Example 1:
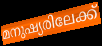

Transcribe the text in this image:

മനുഷ്യരിലേക്ക്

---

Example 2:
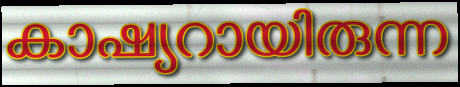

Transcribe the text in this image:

കാഷ്യറായിരുന്ന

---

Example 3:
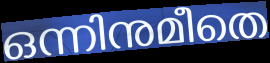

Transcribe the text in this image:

ഒന്നിനുമീതെ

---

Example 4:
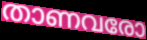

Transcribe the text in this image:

താണവരോ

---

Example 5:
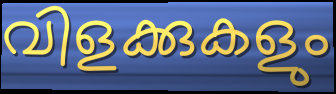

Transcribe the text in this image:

വിളക്കുകളും